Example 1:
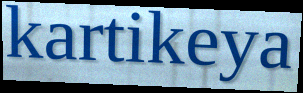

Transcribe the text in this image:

kartikeya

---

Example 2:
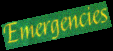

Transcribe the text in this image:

Emergencies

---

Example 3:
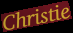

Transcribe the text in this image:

Christie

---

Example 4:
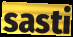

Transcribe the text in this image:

sasti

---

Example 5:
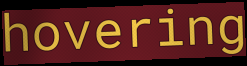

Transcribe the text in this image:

hovering